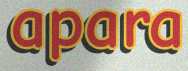
apara